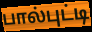
பால்புட்டி